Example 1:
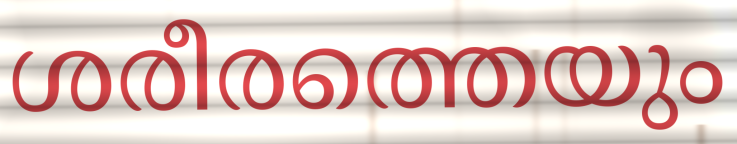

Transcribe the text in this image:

ശരീരത്തെയും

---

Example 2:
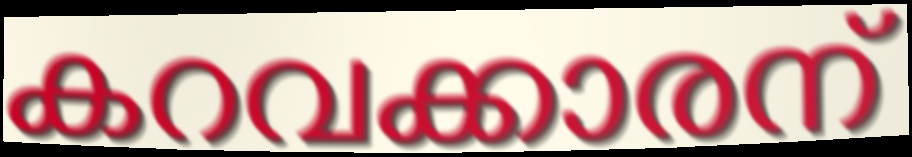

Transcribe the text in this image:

കറവക്കാരന്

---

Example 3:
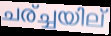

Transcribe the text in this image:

ചര്ച്ചയില്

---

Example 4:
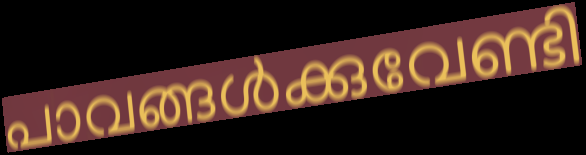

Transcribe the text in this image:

പാവങ്ങൾക്കുവേണ്ടി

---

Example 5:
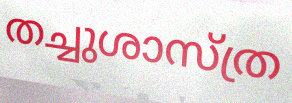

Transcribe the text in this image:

തച്ചുശാസ്ത്ര